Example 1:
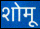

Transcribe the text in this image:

शोमू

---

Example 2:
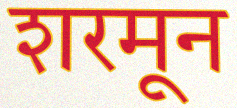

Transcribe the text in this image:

शरमून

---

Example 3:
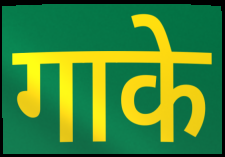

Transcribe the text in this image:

गाके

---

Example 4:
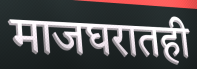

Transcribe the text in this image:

माजघरातही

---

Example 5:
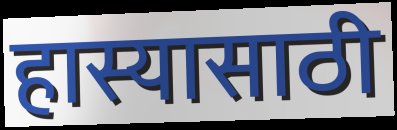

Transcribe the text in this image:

हास्यासाठी